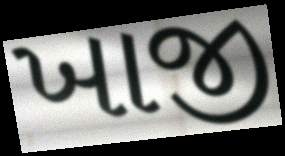
ખાજી